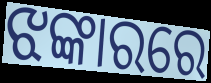
ଝଙ୍କାରରେ